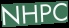
NHPC